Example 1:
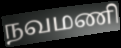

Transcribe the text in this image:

நவமணி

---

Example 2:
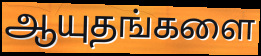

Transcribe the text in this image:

ஆயுதங்களை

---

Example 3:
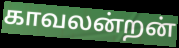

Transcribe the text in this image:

காவலன்றன்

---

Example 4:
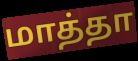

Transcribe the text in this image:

மாத்தா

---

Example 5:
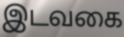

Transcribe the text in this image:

இடவகை